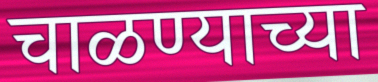
चाळण्याच्या